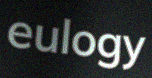
eulogy